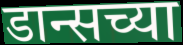
डान्सच्या